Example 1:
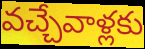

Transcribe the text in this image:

వచ్చేవాళ్లకు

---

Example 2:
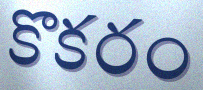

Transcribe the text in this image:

కొకరం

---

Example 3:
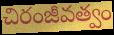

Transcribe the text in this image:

చిరంజీవత్వం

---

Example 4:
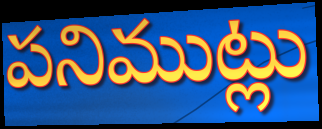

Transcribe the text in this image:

పనిముట్లు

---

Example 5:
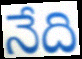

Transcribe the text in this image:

నేది